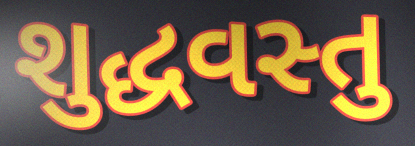
શુદ્ધવસ્તુ